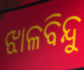
ଝାଳବିନ୍ଦୁ